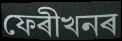
ফেৰীখনৰ